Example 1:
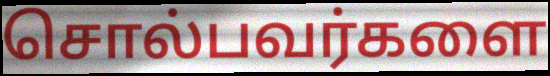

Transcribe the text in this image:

சொல்பவர்களை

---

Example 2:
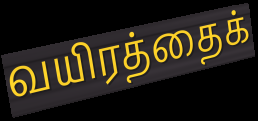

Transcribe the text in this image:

வயிரத்தைக்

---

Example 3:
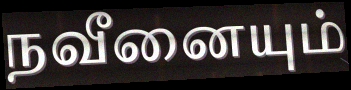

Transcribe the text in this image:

நவீனையும்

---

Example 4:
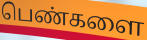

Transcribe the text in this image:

பெண்களை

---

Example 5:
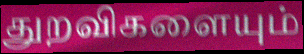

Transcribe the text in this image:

துறவிகளையும்